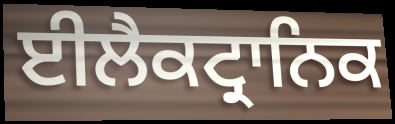
ਈਲੈਕਟ੍ਰਾਨਿਕ